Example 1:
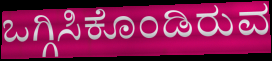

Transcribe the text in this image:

ಒಗ್ಗಿಸಿಕೊಂಡಿರುವ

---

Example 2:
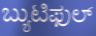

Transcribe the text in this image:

ಬ್ಯುಟಿಫುಲ್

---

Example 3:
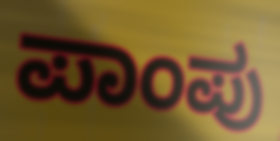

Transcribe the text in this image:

ಪಾಂಪು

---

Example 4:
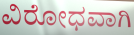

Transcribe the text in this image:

ವಿರೋಧವಾಗಿ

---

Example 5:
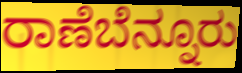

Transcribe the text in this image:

ರಾಣೆಬೆನ್ನೂರು